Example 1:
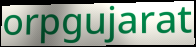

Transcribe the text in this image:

orpgujarat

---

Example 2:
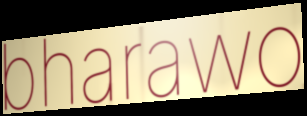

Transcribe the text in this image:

bharawo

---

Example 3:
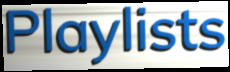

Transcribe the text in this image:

Playlists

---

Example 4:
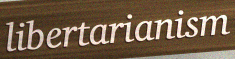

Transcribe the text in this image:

libertarianism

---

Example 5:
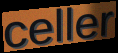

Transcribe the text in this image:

celler